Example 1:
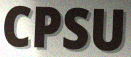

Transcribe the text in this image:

CPSU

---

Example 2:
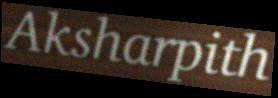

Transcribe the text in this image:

Aksharpith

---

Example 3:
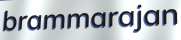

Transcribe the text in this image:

brammarajan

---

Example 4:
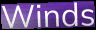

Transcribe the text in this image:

Winds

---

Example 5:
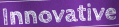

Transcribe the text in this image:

Innovative